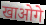
खाओगे